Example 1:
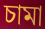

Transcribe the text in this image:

চামা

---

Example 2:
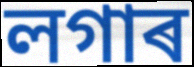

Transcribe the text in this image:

লগাৰ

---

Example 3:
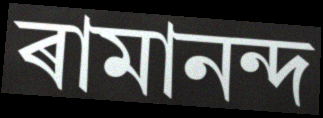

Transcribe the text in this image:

ৰামানন্দ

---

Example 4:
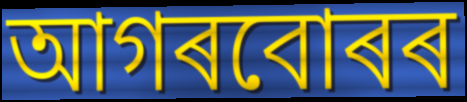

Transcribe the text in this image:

আগৰবোৰৰ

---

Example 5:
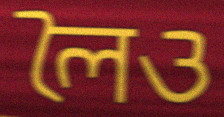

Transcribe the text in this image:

লৈও